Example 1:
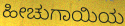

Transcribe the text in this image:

ಹೀಚುಗಾಯಿಯ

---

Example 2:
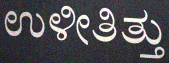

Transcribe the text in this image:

ಉಳೀತಿತ್ತು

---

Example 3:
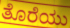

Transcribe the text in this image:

ತೊರೆಯು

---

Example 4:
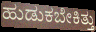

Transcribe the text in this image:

ಹುಡುಕಬೇಕಿತ್ತು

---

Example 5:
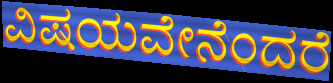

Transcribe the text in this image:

ವಿಷಯವೇನೆಂದರೆ